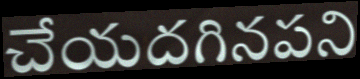
చేయదగినపని